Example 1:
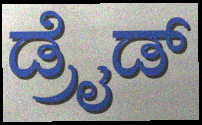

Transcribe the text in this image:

ಡ್ರೈಡ್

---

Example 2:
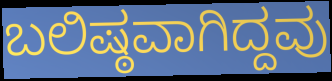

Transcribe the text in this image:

ಬಲಿಷ್ಠವಾಗಿದ್ದವು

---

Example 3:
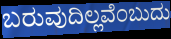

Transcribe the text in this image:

ಬರುವುದಿಲ್ಲವೆಂಬುದು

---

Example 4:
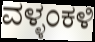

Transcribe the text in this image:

ವಳ್ಳಂಕಳಿ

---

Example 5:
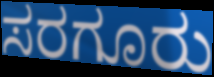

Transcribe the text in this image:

ಸರಗೂರು